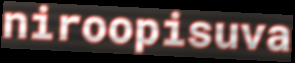
niroopisuva